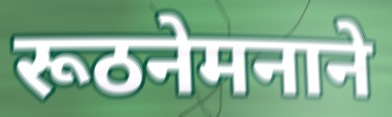
रूठनेमनाने